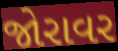
જોરાવર